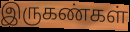
இருகண்கள்